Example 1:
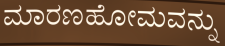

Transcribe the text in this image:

ಮಾರಣಹೋಮವನ್ನು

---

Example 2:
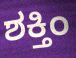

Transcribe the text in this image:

ಶಕ್ತಿಂ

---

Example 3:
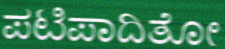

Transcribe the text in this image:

ಪಟಿಪಾದಿತೋ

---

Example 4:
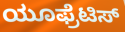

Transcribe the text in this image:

ಯೂಫ್ರೆಟಿಸ್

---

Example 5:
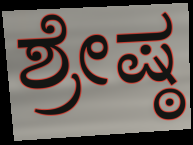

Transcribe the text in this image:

ಶ್ರೇಷ್ಠ